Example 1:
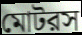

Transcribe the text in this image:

মোটরস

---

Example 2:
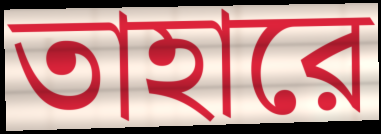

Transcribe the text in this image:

তাহারে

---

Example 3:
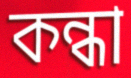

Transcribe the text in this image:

কন্ধা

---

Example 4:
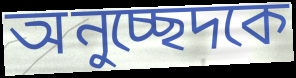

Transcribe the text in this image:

অনুচ্ছেদকে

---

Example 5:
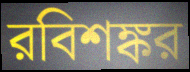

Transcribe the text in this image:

রবিশঙ্কর